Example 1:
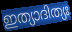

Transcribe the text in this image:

ഇത്യാദിത്യഃ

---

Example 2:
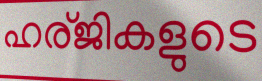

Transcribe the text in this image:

ഹര്ജികളുടെ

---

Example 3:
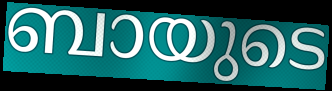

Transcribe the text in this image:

ബായുടെ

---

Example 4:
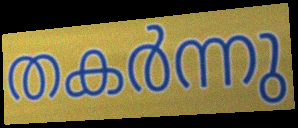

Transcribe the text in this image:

തകർന്നു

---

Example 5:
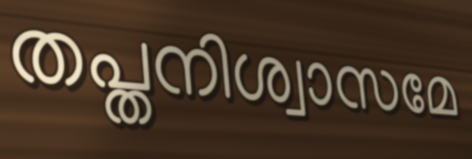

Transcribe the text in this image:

തപ്തനിശ്വാസമേ